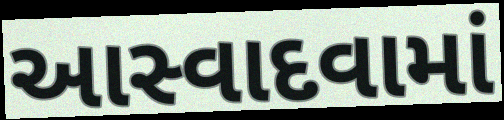
આસ્વાદવામાં